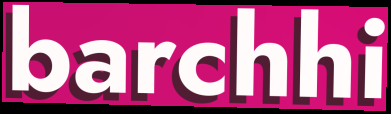
barchhi